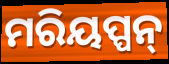
ମରିୟପ୍ପନ୍